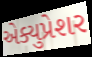
એક્યુપ્રેશર